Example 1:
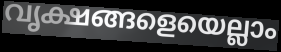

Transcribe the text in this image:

വൃക്ഷങ്ങളെയെല്ലാം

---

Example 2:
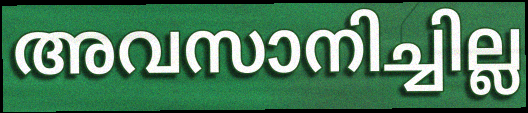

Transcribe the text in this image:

അവസാനിച്ചില്ല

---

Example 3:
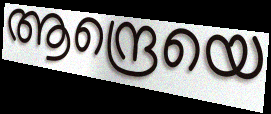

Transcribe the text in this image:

ആന്ദ്രെയെ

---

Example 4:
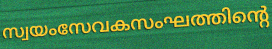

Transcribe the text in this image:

സ്വയംസേവകസംഘത്തിന്റെ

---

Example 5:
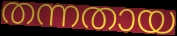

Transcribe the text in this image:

തന്നതായ